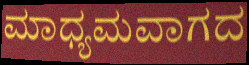
ಮಾಧ್ಯಮವಾಗದ